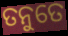
ତନୁତେ